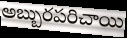
అబ్బురపరిచాయి